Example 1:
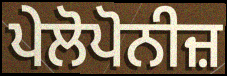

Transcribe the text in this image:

ਪੇਲੋਪੋਨੀਜ਼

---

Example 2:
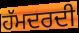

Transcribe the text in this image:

ਹੱਮਦਰਦੀ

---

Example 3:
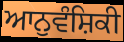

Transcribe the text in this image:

ਆਨੁਵੰਸ਼ਿਕੀ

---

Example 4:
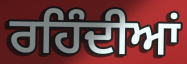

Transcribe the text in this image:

ਰਹਿੰਦੀਆਂ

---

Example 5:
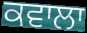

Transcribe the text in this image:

ਕਵਾਲਾ